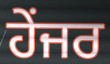
ਹੇਂਜਰ